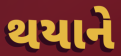
થયાને